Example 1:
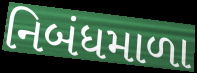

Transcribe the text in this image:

નિબંધમાળા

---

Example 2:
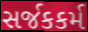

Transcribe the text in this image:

સર્જકકર્મ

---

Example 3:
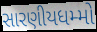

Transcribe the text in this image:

સારણીયધમ્મો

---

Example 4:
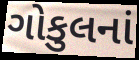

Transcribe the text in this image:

ગોકુલનાં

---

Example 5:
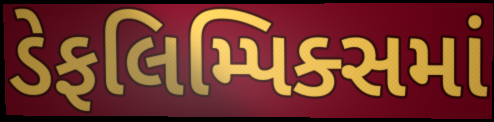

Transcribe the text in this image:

ડેફલિમ્પિક્સમાં